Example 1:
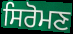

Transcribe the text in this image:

ਸਿਰੋਮਣ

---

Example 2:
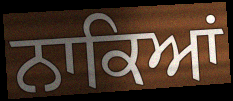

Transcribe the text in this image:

ਨਾਕਿਆਂ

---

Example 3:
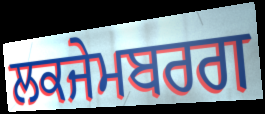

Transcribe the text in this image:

ਲਕਜੇਮਬਰਗ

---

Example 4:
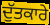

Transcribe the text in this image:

ਦੁੱਤਕਾਰੇ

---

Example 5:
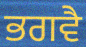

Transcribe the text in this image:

ਭਗਵੈ